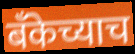
बँकेच्याच